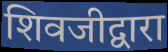
शिवजीद्वारा